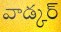
వాడ్కర్